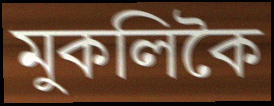
মুকলিকৈ